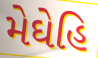
મેઘેહિ